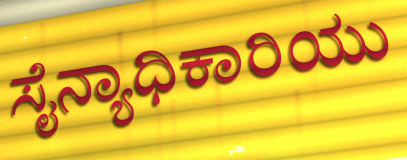
ಸೈನ್ಯಾಧಿಕಾರಿಯು